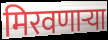
मिरवणाऱ्या